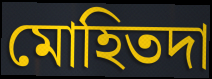
মোহিতদা